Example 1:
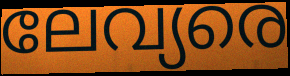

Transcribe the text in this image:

ലേവ്യരെ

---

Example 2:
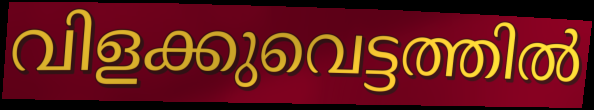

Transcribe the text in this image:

വിളക്കുവെട്ടത്തിൽ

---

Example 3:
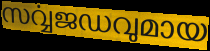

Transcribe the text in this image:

സൎവ്വജഡവുമായ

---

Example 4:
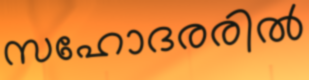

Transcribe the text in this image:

സഹോദരരിൽ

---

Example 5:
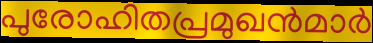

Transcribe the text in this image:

പുരോഹിതപ്രമുഖൻമാർ